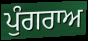
ਪੁੰਗਰਾਅ